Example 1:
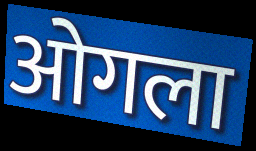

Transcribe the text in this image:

ओगला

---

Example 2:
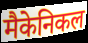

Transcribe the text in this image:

मैकेनिकल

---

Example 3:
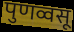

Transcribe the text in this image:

पुणव्वसू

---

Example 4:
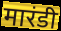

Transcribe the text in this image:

मारंडी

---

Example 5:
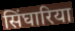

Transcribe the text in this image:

सिंघारिया